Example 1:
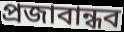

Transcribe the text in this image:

প্রজাবান্ধব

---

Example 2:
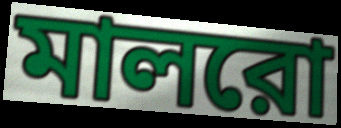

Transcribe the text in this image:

মালরো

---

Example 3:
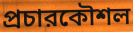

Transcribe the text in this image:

প্রচারকৌশল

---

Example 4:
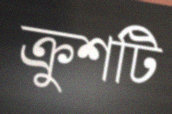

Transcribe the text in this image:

ক্রুশটি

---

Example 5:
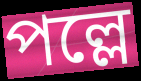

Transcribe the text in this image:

পল্লে